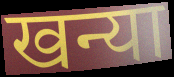
खन्या